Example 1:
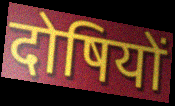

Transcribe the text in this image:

दोषियों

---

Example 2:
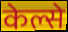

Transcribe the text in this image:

केल्से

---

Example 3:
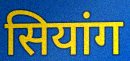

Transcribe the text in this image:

सियांग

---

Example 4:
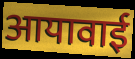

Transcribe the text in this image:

आयावाई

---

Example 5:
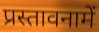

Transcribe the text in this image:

प्रस्तावनामें